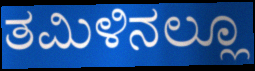
ತಮಿಳಿನಲ್ಲೂ